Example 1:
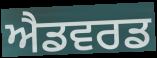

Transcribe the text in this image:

ਐਡਵਰਡ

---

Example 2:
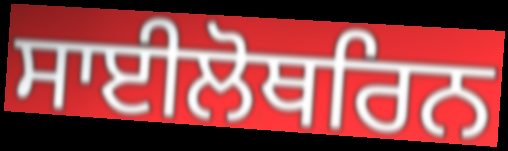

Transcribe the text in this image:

ਸਾਈਲੋਥਰਿਨ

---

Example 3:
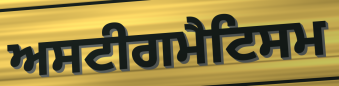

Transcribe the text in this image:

ਅਸਟੀਗਮੈਟਿਸਮ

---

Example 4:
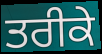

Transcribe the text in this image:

ਤਰੀਕੇ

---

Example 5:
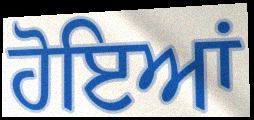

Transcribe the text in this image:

ਹੋਇਆਂ